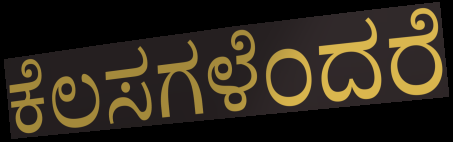
ಕೆಲಸಗಳೆಂದರೆ